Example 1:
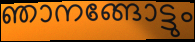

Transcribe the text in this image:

ഞാനങ്ങോട്ടും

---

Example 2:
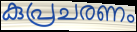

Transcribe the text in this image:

കുപ്രചരണം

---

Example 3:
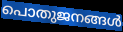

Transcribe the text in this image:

പൊതുജനങ്ങൾ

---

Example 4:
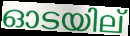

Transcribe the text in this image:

ഓടയില്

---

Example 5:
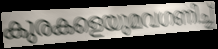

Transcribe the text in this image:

കുരകളെയുമവഗണിച്ച്